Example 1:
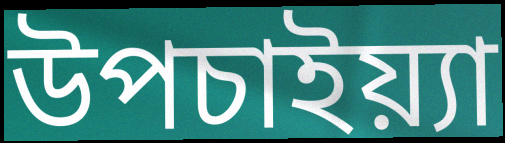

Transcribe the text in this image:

উপচাইয়্যা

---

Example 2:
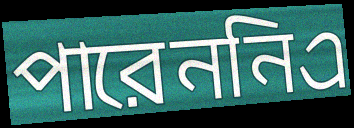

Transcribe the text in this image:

পারেননিএ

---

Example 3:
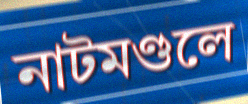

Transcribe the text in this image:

নাটমণ্ডলে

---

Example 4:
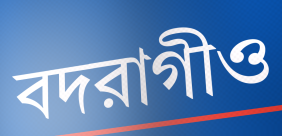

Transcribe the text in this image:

বদরাগীও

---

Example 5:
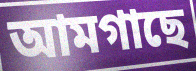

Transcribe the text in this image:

আমগাছে